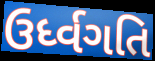
ઉર્ધ્વગતિ